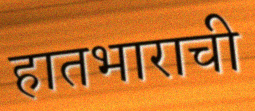
हातभाराची